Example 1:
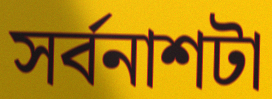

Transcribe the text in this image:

সর্বনাশটা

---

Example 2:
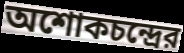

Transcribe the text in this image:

অশোকচন্দ্রের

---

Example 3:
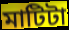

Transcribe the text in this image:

মাটিটা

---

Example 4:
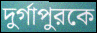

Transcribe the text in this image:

দুর্গাপুরকে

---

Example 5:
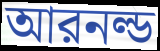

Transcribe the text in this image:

আরনল্ড